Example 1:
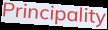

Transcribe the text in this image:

Principality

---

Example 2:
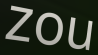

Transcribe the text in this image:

zou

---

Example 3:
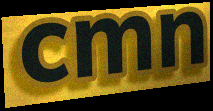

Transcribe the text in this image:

cmn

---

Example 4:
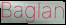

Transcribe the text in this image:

Baglan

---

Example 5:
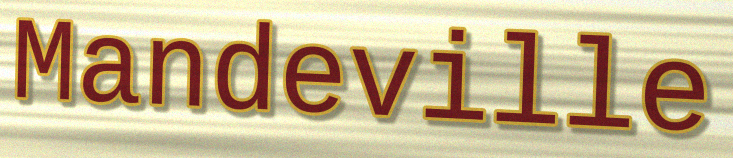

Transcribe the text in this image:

Mandeville